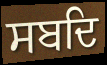
ਸਬਦਿ